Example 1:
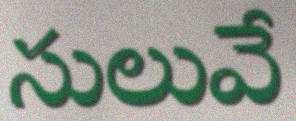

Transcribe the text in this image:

సులువే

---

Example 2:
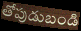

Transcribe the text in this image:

తోపుడుబండి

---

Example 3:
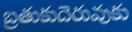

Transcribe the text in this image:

బ్రతుకుదెరువుకు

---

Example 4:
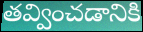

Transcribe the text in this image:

తవ్వించడానికి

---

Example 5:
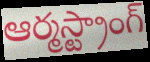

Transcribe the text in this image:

ఆర్మస్ట్రాంగ్